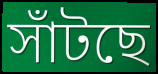
সাঁটছে